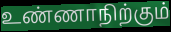
உண்ணாநிற்கும்